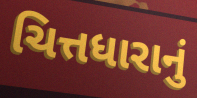
ચિત્તધારાનું